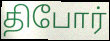
திபோர்